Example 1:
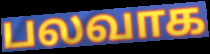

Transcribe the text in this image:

பலவாக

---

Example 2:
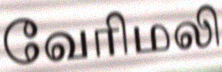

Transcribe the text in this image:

வேரிமலி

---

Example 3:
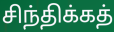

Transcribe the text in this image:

சிந்திக்கத்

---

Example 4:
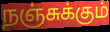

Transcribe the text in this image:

நஞ்சுக்கும்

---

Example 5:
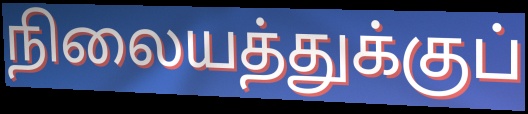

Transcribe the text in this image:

நிலையத்துக்குப்